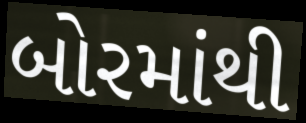
બોરમાંથી